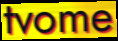
tvome